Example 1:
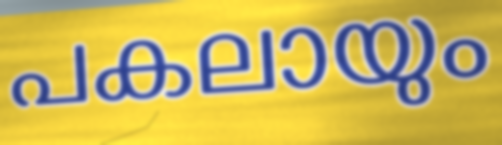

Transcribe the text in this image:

പകലായും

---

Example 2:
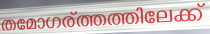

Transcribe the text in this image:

തമോഗര്ത്തത്തിലേക്ക്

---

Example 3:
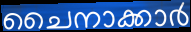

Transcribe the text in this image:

ചൈനാക്കാർ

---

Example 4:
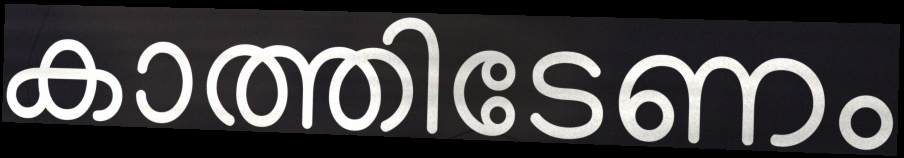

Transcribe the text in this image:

കാത്തിടേണം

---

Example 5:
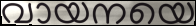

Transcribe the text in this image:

വായനയെ